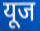
यूज